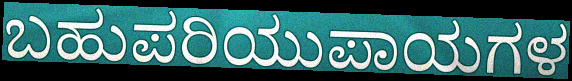
ಬಹುಪರಿಯುಪಾಯಗಳ